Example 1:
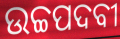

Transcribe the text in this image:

ଉଚ୍ଚପଦବୀ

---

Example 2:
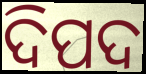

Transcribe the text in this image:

ଦିପଦ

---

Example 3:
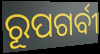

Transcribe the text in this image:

ରୂପଗର୍ବୀ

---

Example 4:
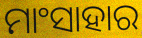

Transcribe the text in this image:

ମାଂସାହାର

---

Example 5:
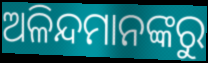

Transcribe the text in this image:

ଅଳିନ୍ଦମାନଙ୍କରୁ